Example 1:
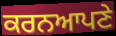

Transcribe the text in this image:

ਕਰਨਆਪਣੇ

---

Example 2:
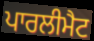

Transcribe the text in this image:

ਪਾਰਲੀਮੈਟ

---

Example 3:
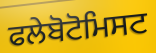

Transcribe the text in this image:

ਫਲੇਬੋਟੋਮਿਸਟ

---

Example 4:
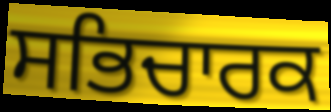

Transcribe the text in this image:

ਸਭਿਚਾਰਕ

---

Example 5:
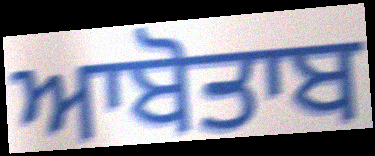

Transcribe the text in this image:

ਆਬੋਤਾਬ